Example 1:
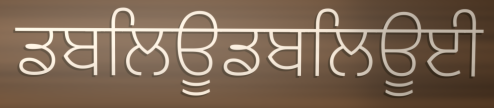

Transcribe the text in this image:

ਡਬਲਿਊਡਬਲਿਊਈ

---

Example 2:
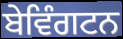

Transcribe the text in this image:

ਬੇਵਿੰਗਟਨ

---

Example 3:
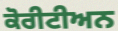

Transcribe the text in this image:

ਕੋਰੀਟੀਅਨ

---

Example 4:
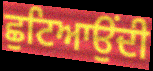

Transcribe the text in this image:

ਛੁਟਿਆਉਂਦੀ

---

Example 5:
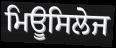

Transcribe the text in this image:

ਮਿਊਸਿਲੇਜ